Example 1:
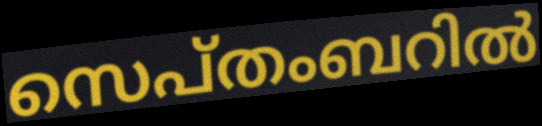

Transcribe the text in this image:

സെപ്തംബറിൽ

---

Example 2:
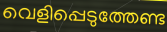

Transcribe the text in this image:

വെളിപ്പെടുത്തേണ്ട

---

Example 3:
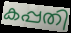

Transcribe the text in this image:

കപ്പതി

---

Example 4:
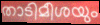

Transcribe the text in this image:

താടിമീശയും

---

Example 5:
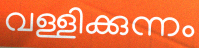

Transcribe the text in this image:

വള്ളിക്കുന്നം